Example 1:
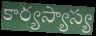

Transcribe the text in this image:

కార్యస్యాస్య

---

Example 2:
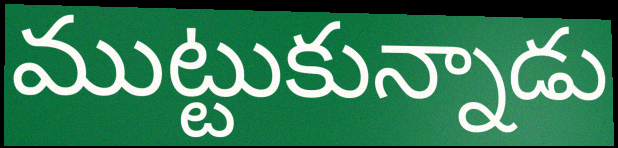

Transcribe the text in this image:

ముట్టుకున్నాడు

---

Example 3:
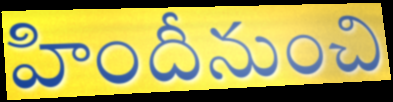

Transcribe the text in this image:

హిందీనుంచి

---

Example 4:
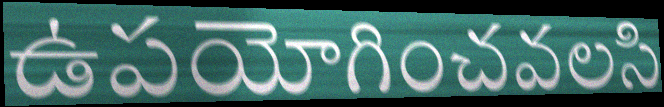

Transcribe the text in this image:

ఉపయోగించవలసి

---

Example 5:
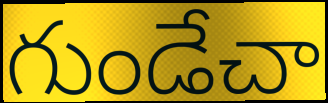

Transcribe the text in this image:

గుండేచా